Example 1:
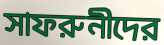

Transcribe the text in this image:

সাফরুনীদের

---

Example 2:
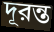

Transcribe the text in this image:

দূরন্ত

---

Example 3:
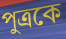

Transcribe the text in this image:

পুত্রকে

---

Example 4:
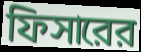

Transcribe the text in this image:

ফিসারের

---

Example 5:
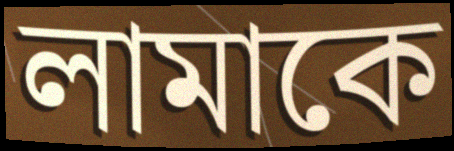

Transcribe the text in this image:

লামাকে